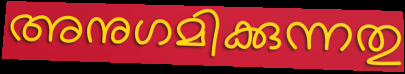
അനുഗമിക്കുന്നതു